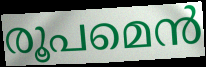
രൂപമെൻ